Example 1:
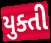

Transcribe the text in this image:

યુક્તી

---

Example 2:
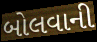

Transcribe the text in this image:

બોલવાની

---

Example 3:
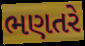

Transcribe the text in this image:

ભણતરે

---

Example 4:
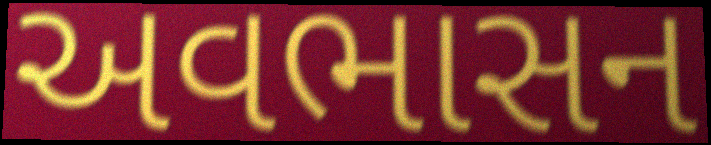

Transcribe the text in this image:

અવભાસન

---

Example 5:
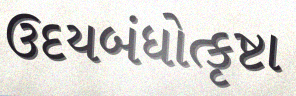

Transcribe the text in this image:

ઉદયબંધોત્કૃષ્ટા